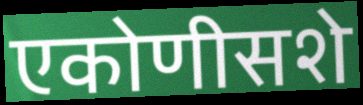
एकोणीसशे